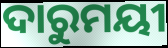
ଦାରୁମୟୀ